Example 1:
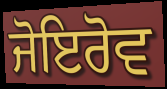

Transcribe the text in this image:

ਜੋਇਰੋਵ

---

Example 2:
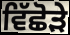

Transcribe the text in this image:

ਵਿੱਛੋੜੇ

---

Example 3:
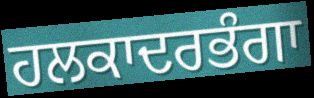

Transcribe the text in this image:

ਹਲਕਾਦਰਭੰਗਾ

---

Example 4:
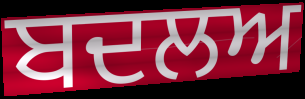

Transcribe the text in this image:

ਬਦਲਅ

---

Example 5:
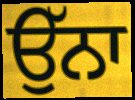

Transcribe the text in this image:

ਉੱਨਾ